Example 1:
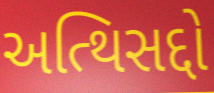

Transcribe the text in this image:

અત્થિસદ્દો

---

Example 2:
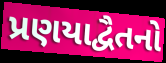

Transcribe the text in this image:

પ્રણયાદ્વૈતનો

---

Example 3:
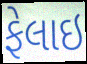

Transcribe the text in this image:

ફેલાઇ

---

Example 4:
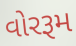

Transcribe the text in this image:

વોરરૂમ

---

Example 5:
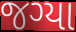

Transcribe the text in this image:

જગ્યા